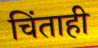
चिंताही